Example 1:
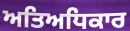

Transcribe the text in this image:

ਅਤਿਅਧਿਕਾਰ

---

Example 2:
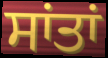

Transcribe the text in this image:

ਸਾਂਤਾਂ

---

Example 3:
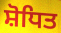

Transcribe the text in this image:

ਸ਼ੋਧਿਤ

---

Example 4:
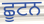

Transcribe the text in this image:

ਛੂਟਨ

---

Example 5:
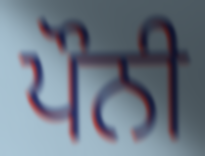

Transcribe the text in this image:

ਪੌਨੀ